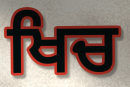
ਖਿਚ